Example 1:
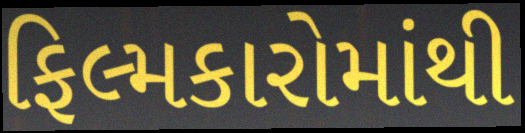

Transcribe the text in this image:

ફિલ્મકારોમાંથી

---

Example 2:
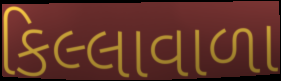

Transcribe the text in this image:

કિલ્લાવાળા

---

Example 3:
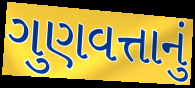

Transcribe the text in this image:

ગુણવત્તાનું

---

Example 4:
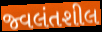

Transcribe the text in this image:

જ્વલંતશીલ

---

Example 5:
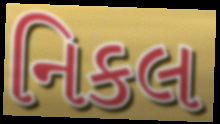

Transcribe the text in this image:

નિકલ